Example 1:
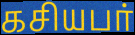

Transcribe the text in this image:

கசியபர்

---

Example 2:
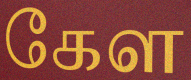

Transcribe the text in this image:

கேள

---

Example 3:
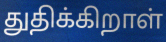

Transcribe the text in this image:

துதிக்கிறாள்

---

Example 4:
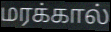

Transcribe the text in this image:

மரக்கால்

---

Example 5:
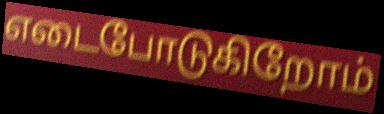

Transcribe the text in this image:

எடைபோடுகிறோம்